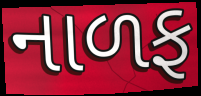
નાળફ